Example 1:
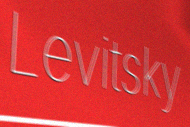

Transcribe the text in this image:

Levitsky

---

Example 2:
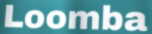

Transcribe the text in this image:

Loomba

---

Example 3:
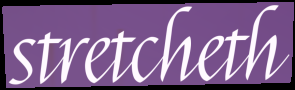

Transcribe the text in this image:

stretcheth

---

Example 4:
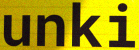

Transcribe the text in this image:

unki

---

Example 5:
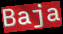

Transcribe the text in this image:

Baja